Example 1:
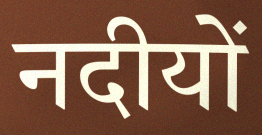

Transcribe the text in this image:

नदीयों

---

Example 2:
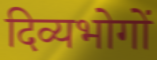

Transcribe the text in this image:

दिव्यभोगों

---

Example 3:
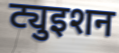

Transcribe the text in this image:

ट्युइशन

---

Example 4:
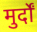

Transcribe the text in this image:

मुर्दों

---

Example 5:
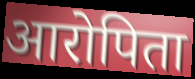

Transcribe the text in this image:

आरोपिता